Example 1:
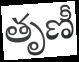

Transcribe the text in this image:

తృణీ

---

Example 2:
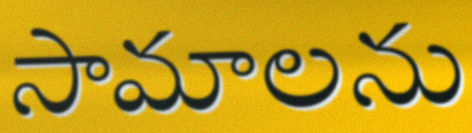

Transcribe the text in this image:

సామాలను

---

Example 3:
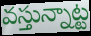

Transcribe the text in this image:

వస్తున్నాట్ట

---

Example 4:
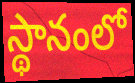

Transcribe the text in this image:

స్థానంలో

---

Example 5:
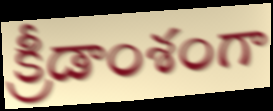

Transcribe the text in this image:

క్రీడాంశంగా